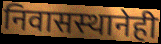
निवासस्थानेही